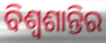
ବିଶ୍ୱଶାନ୍ତିର